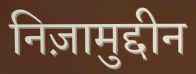
निज़ामुद्दीन